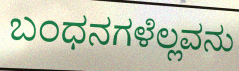
ಬಂಧನಗಳೆಲ್ಲವನು